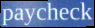
paycheck